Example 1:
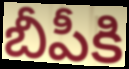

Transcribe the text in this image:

బీపీకి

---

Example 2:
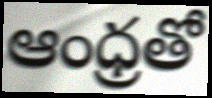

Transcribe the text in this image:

ఆంధ్రతో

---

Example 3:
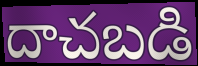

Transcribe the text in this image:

దాచబడి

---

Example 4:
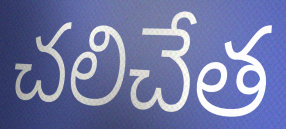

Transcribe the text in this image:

చలిచేత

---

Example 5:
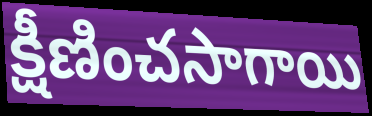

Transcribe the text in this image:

క్షీణించసాగాయి